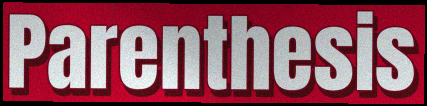
Parenthesis